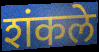
शंकले